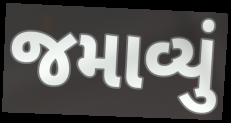
જમાવ્યું